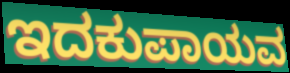
ಇದಕುಪಾಯವ